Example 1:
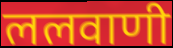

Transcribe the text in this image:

ललवाणी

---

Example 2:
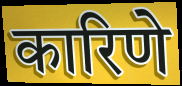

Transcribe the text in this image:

कारिणे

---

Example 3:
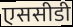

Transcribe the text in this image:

एससीडी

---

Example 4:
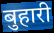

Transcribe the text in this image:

बुहारी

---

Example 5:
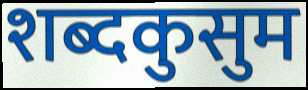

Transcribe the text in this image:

शब्दकुसुम